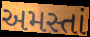
અમસ્તાં